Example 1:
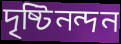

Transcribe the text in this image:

দৃষ্টিনন্দন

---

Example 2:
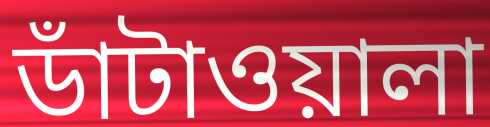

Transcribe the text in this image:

ডাঁটাওয়ালা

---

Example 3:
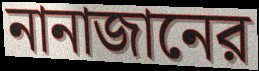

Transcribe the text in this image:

নানাজানের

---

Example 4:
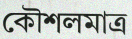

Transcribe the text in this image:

কৌশলমাত্র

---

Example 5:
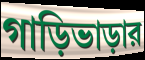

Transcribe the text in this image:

গাড়িভাড়ার